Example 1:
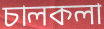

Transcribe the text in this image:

চালকলা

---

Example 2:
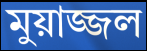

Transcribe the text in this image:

মুয়াজ্জল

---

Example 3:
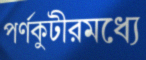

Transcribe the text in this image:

পর্ণকুটীরমধ্যে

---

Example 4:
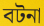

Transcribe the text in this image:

বটনা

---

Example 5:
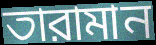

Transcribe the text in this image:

তারামান